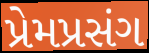
પ્રેમપ્રસંગ